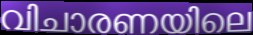
വിചാരണയിലെ